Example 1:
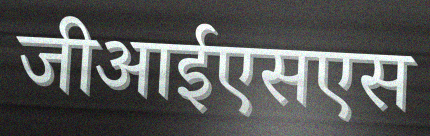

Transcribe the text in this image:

जीआईएसएस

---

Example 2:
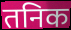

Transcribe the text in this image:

तनिक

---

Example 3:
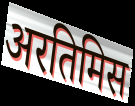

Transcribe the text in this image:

अरतिमिस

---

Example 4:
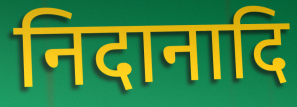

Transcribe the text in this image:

निदानादि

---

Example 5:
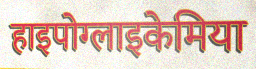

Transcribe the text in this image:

हाइपोग्लाइकेमिया